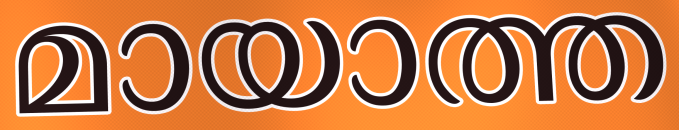
മായാത്ത